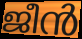
ജീൻ